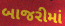
બાજરીમાં